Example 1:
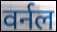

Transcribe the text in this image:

वर्नल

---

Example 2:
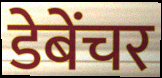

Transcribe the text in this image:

डेबेंचर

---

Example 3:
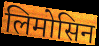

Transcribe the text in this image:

लिमोसिन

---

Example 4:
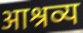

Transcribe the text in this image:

आश्रव्य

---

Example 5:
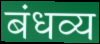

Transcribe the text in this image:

बंधव्य